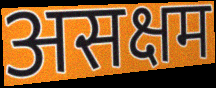
असक्षम